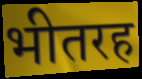
भीतरह